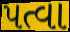
પત્વા